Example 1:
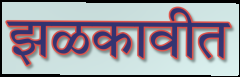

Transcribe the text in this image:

झळकावीत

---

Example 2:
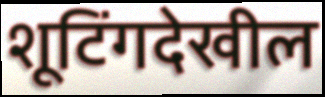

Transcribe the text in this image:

शूटिंगदेखील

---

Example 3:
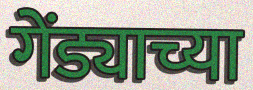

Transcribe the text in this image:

गेंड्याच्या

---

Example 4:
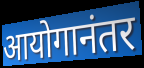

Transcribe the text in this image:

आयोगानंतर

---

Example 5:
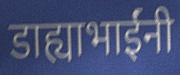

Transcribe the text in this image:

डाह्याभाईंनी